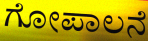
ಗೋಪಾಲನೆ